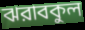
ঝরাবকুল